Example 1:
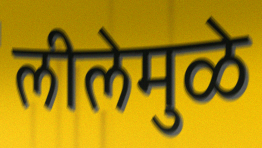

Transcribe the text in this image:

लीलेमुळे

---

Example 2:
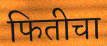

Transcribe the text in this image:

फितीचा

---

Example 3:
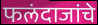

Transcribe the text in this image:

फलंदाजांचे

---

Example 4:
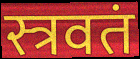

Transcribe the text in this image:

स्त्रवतं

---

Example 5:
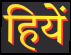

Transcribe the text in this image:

हियें